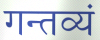
गन्तव्यं